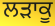
ਲੜਾਕੂ